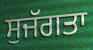
ਸੁਜੱਗਤਾ